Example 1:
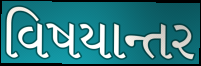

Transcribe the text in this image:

વિષયાન્તર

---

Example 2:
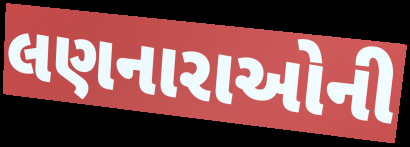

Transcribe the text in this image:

લણનારાઓની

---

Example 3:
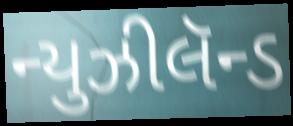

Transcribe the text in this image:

ન્યુઝીલૅન્ડ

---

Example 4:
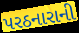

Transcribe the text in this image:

પરઠનારાની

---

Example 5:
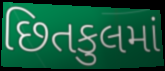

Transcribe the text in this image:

છિતકુલમાં